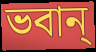
ভবান্